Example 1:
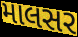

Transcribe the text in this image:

માલસર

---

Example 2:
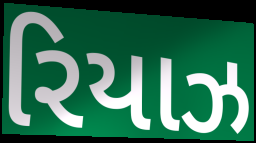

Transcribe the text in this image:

રિયાઝ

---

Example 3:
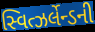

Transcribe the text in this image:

સ્વિત્ઝર્લેન્ડની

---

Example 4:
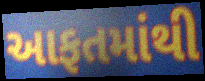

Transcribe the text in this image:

આફતમાંથી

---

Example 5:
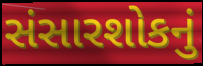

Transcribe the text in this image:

સંસારશોકનું